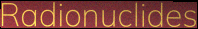
Radionuclides